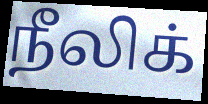
நீலிக்